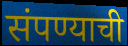
संपण्याची